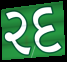
રદ